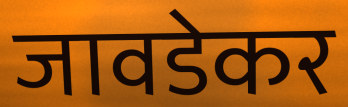
जावडेकर